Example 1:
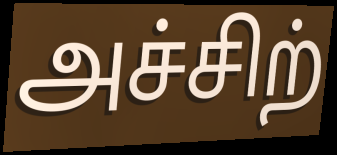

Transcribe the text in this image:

அச்சிற்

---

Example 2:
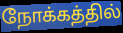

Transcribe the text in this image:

நோக்கத்தில்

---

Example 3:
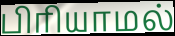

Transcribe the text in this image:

பிரியாமல்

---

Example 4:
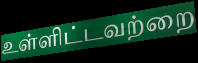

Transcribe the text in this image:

உள்ளிட்டவற்றை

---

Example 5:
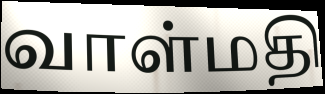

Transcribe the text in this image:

வாள்மதி